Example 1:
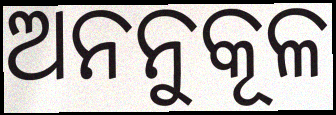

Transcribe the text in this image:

ଅନନୁକୂଳ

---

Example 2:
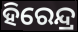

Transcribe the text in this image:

ହିରେନ୍ଦ୍ର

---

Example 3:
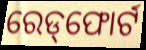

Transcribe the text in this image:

ରେଡ୍‌ଫୋର୍ଟ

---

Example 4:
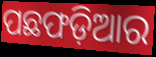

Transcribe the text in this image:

ପଛଫଡ଼ିଆର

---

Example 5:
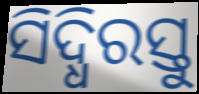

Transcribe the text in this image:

ସିଦ୍ଧିରସ୍ତୁ